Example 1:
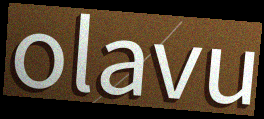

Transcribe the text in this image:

olavu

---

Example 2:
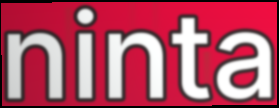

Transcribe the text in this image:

ninta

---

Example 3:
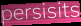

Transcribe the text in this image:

persisits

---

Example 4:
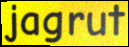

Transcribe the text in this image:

jagrut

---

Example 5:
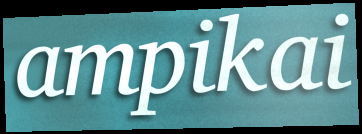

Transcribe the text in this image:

ampikai